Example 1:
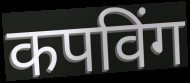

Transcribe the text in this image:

कपविंग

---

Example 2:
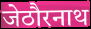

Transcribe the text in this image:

जेठौरनाथ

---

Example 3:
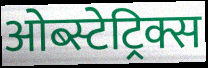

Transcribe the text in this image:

ओब्स्टेट्रिक्स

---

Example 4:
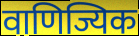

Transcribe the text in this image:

वाणिज्यिक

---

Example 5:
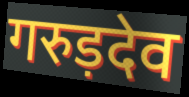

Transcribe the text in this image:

गरुड़देव